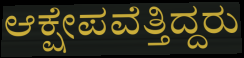
ಆಕ್ಷೇಪವೆತ್ತಿದ್ದರು